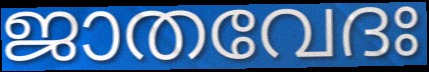
ജാതവേദഃ